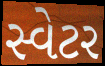
સ્વેટર